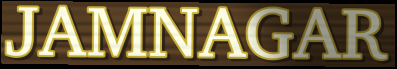
JAMNAGAR